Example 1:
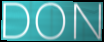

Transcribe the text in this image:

DON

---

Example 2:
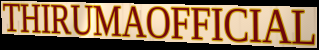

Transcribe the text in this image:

THIRUMAOFFICIAL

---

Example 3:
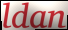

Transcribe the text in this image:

ldan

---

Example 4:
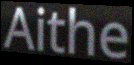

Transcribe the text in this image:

Aithe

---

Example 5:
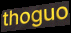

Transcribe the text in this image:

thoguo